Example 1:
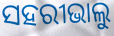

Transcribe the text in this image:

ସହରୀଭାଲୁ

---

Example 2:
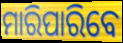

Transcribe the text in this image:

ମାରିପାରିବେ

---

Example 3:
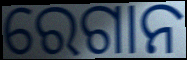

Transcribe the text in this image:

ରେଗାନ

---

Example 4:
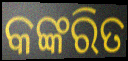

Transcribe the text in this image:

କଙ୍କରିତ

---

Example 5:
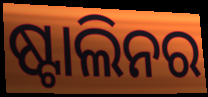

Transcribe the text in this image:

ଷ୍ଟାଲିନର